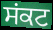
ਸਂਕਟ